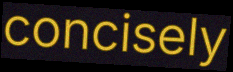
concisely